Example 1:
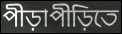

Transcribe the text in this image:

পীড়াপীড়িতে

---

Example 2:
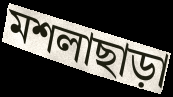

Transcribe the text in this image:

মশলাছাড়া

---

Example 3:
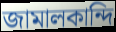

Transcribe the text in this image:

জামালকান্দি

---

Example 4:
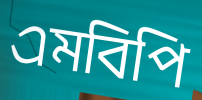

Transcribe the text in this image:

এমবিপি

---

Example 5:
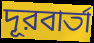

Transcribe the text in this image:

দূরবার্তা